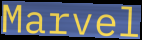
Marvel